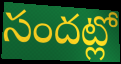
సందట్లో